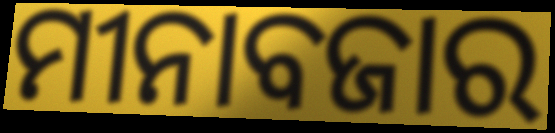
ମୀନାବଜାର